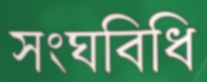
সংঘবিধি